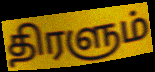
திரளும்